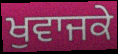
ਖੁਵਾਜਕੇ